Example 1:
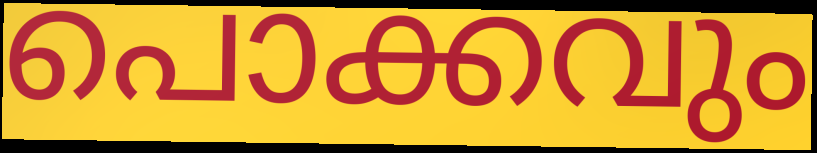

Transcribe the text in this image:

പൊക്കവും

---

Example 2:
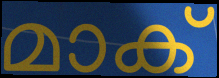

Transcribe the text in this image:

മാക്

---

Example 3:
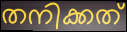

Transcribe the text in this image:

തനിക്കത്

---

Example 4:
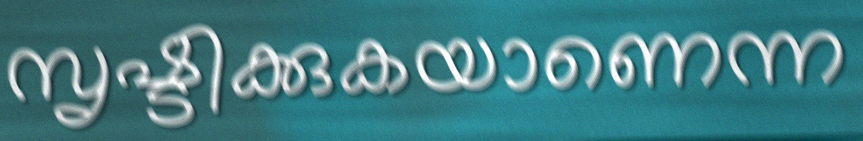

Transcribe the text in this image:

സൃഷ്ടിക്കുകയാണെന്ന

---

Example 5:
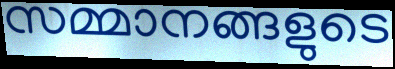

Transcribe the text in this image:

സമ്മാനങ്ങളുടെ